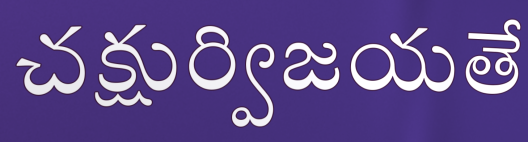
చక్షుర్విజయతే